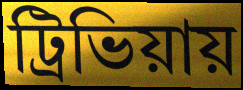
ট্রিভিয়ায়